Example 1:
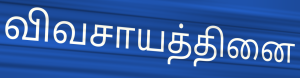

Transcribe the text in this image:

விவசாயத்தினை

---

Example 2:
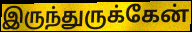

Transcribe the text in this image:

இருந்துருக்கேன்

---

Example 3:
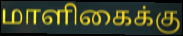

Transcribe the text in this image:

மாளிகைக்கு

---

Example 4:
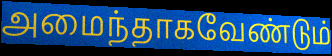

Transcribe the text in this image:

அமைந்தாகவேண்டும்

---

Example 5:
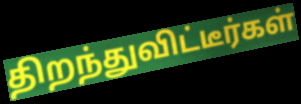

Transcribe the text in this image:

திறந்துவிட்டீர்கள்